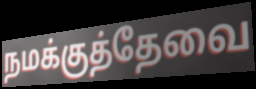
நமக்குத்தேவை